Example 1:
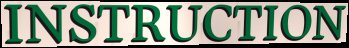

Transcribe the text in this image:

INSTRUCTION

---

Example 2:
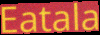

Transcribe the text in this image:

Eatala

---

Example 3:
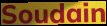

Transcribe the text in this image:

Soudain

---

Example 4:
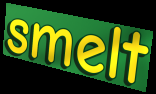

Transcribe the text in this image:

smelt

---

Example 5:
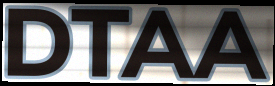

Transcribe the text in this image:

DTAA